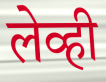
लेव्ही